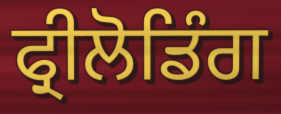
ਫ੍ਰੀਲੋਡਿੰਗ